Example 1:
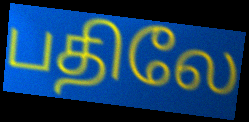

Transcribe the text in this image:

பதிலே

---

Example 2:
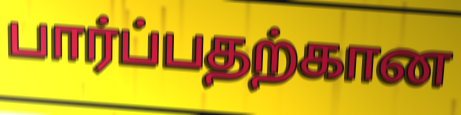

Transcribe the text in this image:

பார்ப்பதற்கான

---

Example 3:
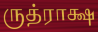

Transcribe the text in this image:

ருத்ராக்ஷ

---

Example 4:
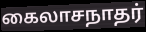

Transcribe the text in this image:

கைலாசநாதர்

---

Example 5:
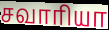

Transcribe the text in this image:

சவாரியா